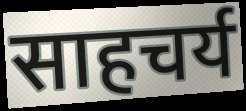
साहचर्य